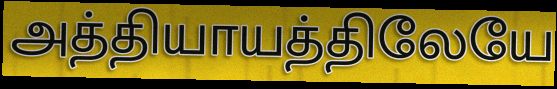
அத்தியாயத்திலேயே